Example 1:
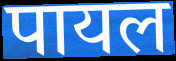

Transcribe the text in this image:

पायल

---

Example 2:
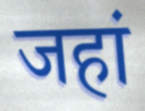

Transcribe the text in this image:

जहां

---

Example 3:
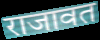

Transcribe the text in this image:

राजावत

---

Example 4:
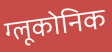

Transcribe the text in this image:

ग्लूकोनिक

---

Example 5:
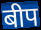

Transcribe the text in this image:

बीप